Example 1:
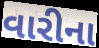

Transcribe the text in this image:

વારીના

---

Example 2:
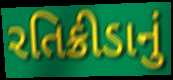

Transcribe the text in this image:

રતિક્રીડાનું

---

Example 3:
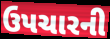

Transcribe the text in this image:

ઉપચારની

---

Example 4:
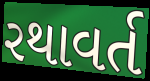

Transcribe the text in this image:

રથાવર્ત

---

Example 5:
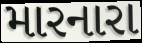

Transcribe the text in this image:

મારનારા